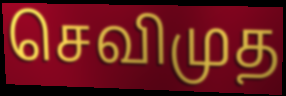
செவிமுத